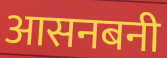
आसनबनी